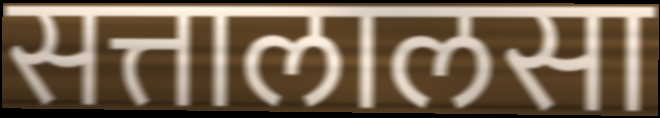
सत्तालालसा